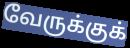
வேருக்குக்